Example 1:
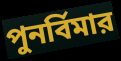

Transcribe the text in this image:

পুনর্বিমার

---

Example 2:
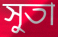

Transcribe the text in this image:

সুতা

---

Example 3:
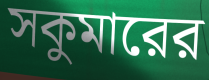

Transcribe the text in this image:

সকুমারের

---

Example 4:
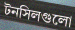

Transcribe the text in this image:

টনসিলগুলো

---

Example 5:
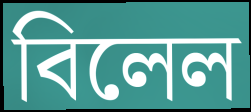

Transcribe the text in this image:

বিলেল